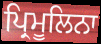
ਪ੍ਰਿਮੂਲਿਨਾ